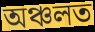
অঞ্চলত